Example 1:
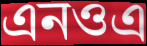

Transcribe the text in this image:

এনওএ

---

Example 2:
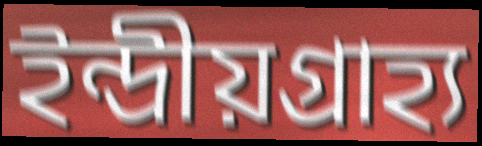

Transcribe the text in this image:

ইন্দ্রীয়গ্রাহ্য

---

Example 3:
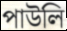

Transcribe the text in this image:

পাউলি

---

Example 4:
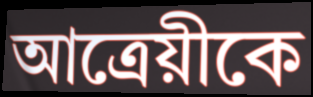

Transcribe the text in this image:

আত্রেয়ীকে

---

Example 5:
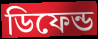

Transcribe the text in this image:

ডিফেন্ড